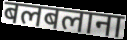
बलबलाना